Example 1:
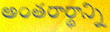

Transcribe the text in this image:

అంతరార్థాన్ని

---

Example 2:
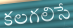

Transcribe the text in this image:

కలగలిసే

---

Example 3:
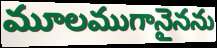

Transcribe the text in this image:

మూలముగానైనను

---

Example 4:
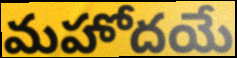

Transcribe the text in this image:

మహోదయే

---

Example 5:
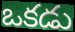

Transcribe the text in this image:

ఒకడు